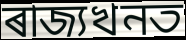
ৰাজ্যখনত